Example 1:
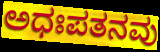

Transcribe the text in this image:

ಅಧಃಪತನವು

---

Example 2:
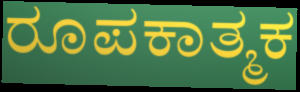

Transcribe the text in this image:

ರೂಪಕಾತ್ಮಕ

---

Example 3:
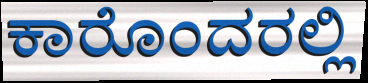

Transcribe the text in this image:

ಕಾರೊಂದರಲ್ಲಿ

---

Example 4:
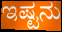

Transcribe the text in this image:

ಇಷ್ಟನು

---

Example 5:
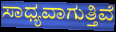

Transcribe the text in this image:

ಸಾಧ್ಯವಾಗುತ್ತಿವೆ